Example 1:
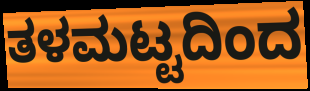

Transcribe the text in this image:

ತಳಮಟ್ಟದಿಂದ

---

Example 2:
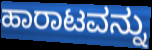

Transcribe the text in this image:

ಹಾರಾಟವನ್ನು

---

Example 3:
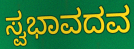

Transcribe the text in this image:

ಸ್ವಭಾವದವ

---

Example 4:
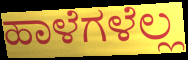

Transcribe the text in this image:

ಹಾಳೆಗಳೆಲ್ಲ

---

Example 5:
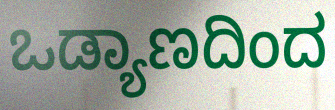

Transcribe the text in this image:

ಒಡ್ಯಾಣದಿಂದ